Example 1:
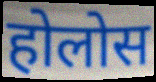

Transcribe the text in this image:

होलोस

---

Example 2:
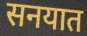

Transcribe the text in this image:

सनयात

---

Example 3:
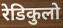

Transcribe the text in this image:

रेडिकुलो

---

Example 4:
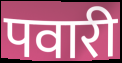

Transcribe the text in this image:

पवारी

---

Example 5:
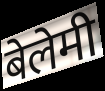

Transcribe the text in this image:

बेलेमी